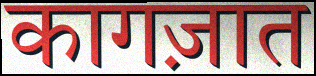
कागज़ात